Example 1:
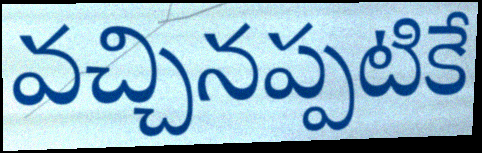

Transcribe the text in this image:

వచ్చినప్పటికే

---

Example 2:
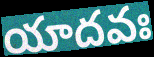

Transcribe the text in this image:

యాదవః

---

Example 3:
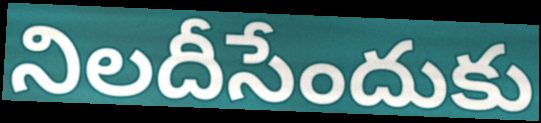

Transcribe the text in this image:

నిలదీసేందుకు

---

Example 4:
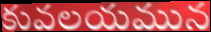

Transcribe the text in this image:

కువలయమున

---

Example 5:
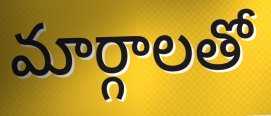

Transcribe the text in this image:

మార్గాలతో